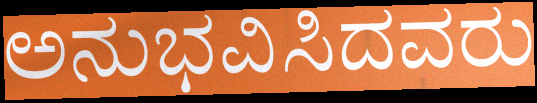
ಅನುಭವಿಸಿದವರು